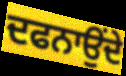
ਦਫਨਾਉਂਦੇ